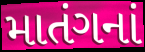
માતંગનાં